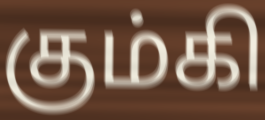
கும்கி